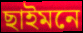
ছাইমনে